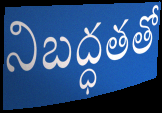
నిబద్ధతతో